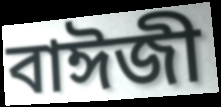
বাঈজী